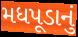
મધપૂડાનું